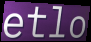
etlo